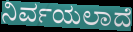
ನಿರ್ವಯಲಾದೆ